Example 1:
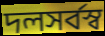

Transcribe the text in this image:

দলসর্বস্ব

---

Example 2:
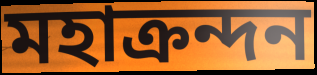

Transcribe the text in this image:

মহাক্রন্দন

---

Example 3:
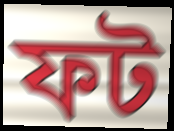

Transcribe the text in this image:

ফট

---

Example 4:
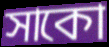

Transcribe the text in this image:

সাকো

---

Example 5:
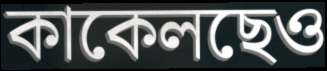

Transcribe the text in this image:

কাকেলছেও